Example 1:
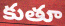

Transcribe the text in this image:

కుతూ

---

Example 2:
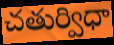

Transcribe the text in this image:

చతుర్విధా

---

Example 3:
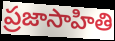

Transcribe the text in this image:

ప్రజాసాహితి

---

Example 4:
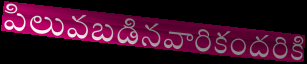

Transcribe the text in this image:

పిలువబడినవారికందరికి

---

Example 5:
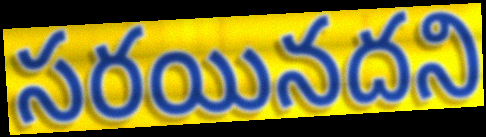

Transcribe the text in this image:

సరయినదని